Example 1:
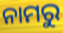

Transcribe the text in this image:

ନାମରୁ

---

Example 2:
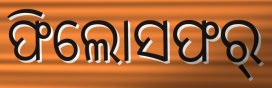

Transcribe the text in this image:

ଫିଲୋସଫର୍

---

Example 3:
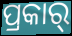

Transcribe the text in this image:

ପ୍ରକାର୍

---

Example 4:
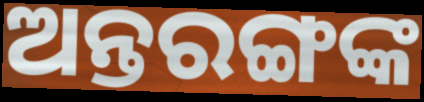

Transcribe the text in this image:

ଅନ୍ତରଙ୍ଗଙ୍କ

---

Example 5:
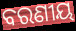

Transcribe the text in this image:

ବରଣୀୟ